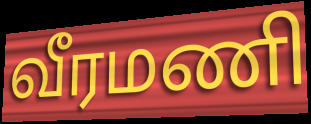
வீரமணி